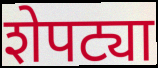
शेपट्या